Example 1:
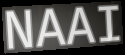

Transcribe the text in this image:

NAAI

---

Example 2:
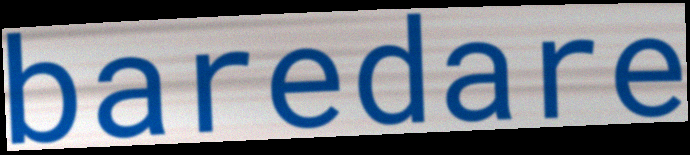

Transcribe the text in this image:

baredare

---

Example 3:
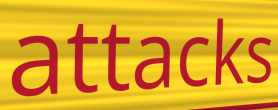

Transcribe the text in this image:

attacks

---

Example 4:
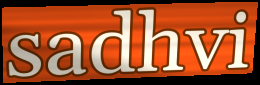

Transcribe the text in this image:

sadhvi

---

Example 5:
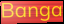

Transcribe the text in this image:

Banga